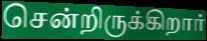
சென்றிருக்கிறார்